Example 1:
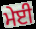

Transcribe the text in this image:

ਮੇਈ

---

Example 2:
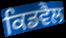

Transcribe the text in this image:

ਕਿਡਵੈਲ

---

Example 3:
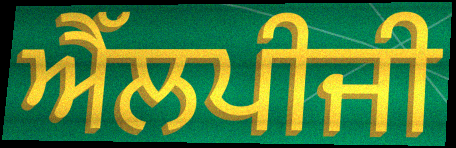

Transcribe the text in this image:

ਐੱਲਪੀਜੀ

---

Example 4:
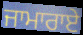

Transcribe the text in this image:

ਜਾਮਾਰਾਏ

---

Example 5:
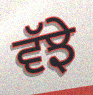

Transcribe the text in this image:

ਵੱਝੇ